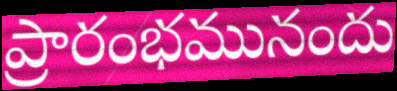
ప్రారంభమునందు